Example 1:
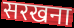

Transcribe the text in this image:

सरखना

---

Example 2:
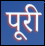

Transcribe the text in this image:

पूरी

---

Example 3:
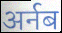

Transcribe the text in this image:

अर्नब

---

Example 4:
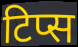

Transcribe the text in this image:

टिप्स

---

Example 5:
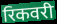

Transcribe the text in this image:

रिकवरी